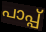
പാപ്പ്